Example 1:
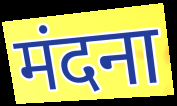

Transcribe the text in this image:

मंदना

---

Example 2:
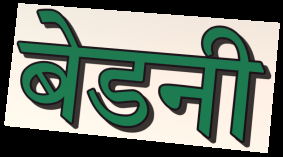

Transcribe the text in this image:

बेडनी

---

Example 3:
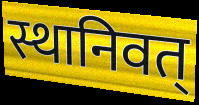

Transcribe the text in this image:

स्थानिवत्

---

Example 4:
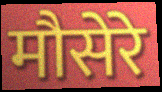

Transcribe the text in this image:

मौसेरे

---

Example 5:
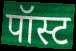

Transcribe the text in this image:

पॉस्ट